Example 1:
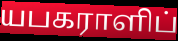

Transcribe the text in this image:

யபகராளிப்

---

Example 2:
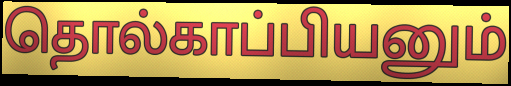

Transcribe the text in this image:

தொல்காப்பியனும்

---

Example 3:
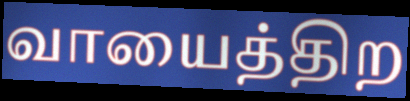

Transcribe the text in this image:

வாயைத்திற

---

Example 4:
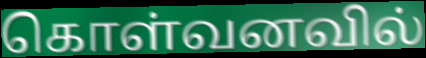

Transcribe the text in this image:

கொள்வனவில்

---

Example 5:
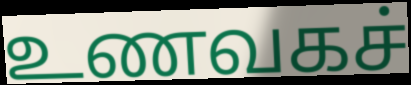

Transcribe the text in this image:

உணவகச்